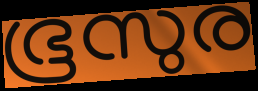
ഭൂസുര